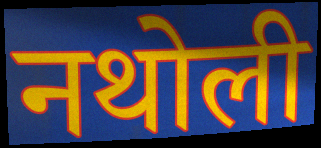
नथोली